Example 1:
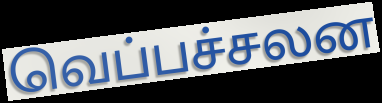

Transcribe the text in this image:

வெப்பச்சலன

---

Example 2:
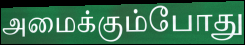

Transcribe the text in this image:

அமைக்கும்போது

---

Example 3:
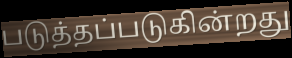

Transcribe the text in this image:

படுத்தப்படுகின்றது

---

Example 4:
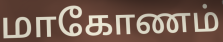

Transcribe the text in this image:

மாகோணம்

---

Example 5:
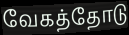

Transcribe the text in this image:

வேகத்தோடு